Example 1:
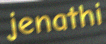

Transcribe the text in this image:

jenathi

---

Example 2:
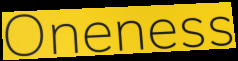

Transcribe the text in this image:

Oneness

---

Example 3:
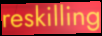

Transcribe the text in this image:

reskilling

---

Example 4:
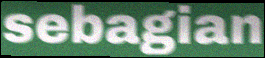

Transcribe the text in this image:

sebagian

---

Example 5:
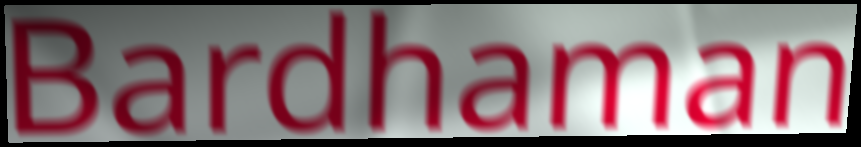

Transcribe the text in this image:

Bardhaman